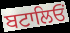
ਬਟਾਲਿਓਂ